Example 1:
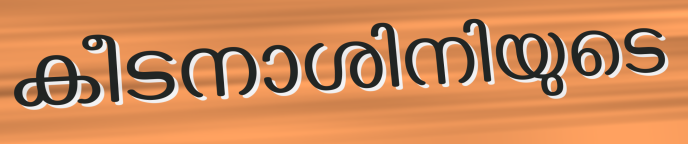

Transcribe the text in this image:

കീടനാശിനിയുടെ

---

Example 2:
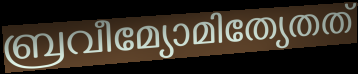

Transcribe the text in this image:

ബ്രവീമ്യോമിത്യേതത്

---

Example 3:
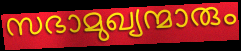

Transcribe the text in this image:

സഭാമുഖ്യന്മാരും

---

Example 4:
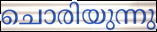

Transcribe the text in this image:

ചൊരിയുന്നു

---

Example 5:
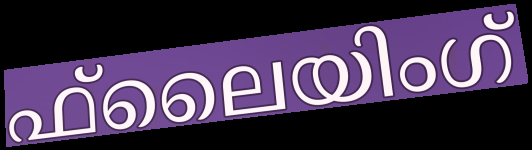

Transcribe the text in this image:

ഫ്‌ലൈയിംഗ്